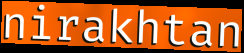
nirakhtan